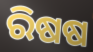
ରିଷଷ